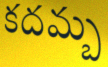
కదమ్బ